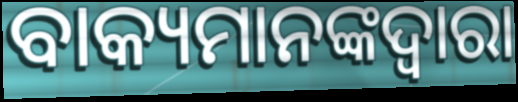
ବାକ୍ୟମାନଙ୍କଦ୍ୱାରା